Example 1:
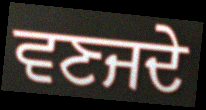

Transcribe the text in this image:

ਵਣਜਦੇ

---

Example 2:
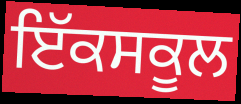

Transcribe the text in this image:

ਇੱਕਸਕੂਲ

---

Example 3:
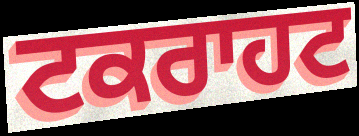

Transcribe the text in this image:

ਟਕਰਾਹਟ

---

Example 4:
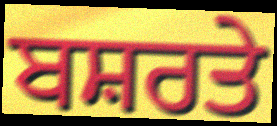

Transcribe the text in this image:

ਬਸ਼ਰਤੇ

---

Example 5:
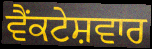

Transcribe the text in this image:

ਵੈਂਕਟੇਸ਼ਵਾਰ